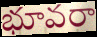
భూవరా